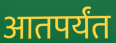
आतपर्यंत